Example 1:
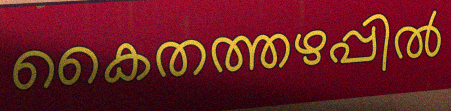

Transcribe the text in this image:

കൈതത്തഴപ്പിൽ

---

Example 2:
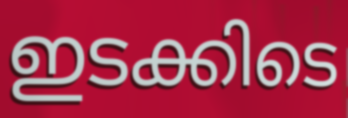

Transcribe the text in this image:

ഇടക്കിടെ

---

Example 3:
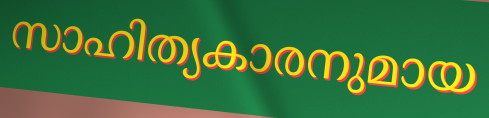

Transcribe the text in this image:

സാഹിത്യകാരനുമായ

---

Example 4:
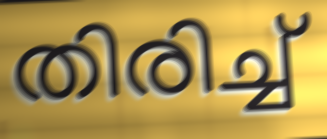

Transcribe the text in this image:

തിരിച്ച്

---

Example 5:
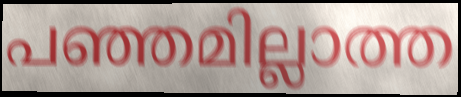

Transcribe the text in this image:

പഞ്ഞമില്ലാത്ത